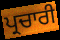
ਪ੍ਰਚਾਰੀ